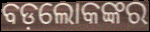
ବଡ଼ଲୋକଙ୍କର